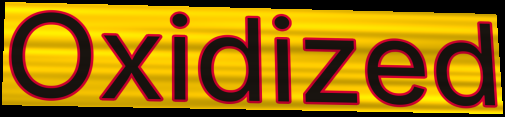
Oxidized